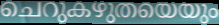
ചെറുകഴുതയെയും